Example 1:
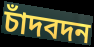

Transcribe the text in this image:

চাঁদবদন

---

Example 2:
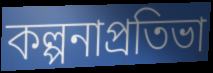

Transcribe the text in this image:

কল্পনাপ্রতিভা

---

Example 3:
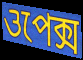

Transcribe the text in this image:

ওপেক্স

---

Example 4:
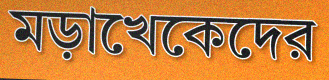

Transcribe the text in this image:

মড়াখেকেদের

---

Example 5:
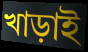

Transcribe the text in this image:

খাড়াই